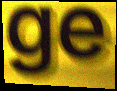
ge